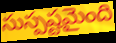
సుస్పష్టమైంది